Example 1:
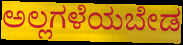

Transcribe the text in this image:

ಅಲ್ಲಗಳೆಯಬೇಡ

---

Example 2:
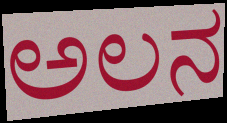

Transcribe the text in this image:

ಅಲನ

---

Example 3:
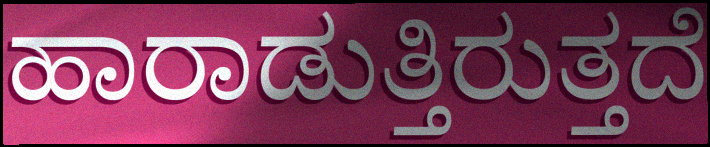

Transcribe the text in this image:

ಹಾರಾಡುತ್ತಿರುತ್ತದೆ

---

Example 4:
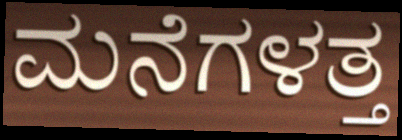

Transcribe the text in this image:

ಮನೆಗಳತ್ತ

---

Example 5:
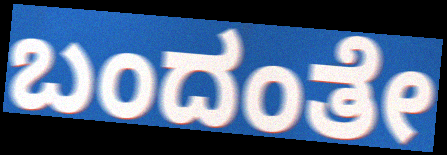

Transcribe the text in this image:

ಬಂದಂತೇ